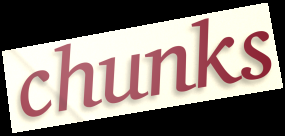
chunks